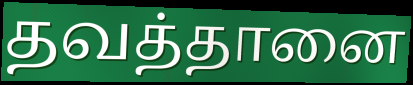
தவத்தானை